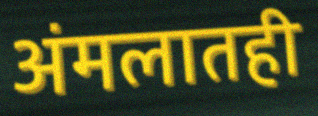
अंमलातही